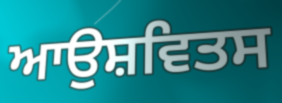
ਆਉਸ਼ਵਿਤਸ